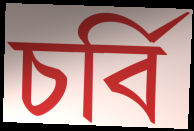
চর্বি